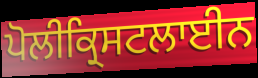
ਪੋਲੀਕ੍ਰਿਸਟਲਾਈਨ